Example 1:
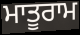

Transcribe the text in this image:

ਮਾਤੂਰਾਮ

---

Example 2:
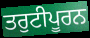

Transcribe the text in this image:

ਤਰੁਟੀਪੂਰਨ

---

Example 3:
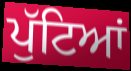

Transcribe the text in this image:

ਪੁੱਟਿਆਂ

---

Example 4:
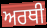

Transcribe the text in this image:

ਅਰਥੀ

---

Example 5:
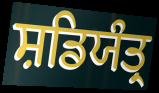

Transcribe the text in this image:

ਸ਼ਡਿਯੰਤ੍ਰ